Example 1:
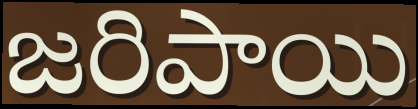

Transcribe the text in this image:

జరిపాయి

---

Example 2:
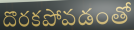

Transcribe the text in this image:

దొరకపోవడంతో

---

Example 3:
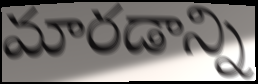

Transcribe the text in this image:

మారడాన్ని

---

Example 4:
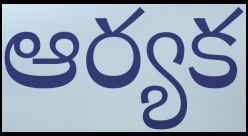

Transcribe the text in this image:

ఆర్యక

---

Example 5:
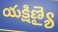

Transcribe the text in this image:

యక్షిణ్యై